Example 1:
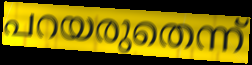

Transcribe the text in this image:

പറയരുതെന്ന്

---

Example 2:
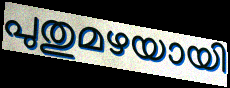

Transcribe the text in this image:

പുതുമഴയായി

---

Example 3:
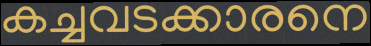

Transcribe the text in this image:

കച്ചവടക്കാരനെ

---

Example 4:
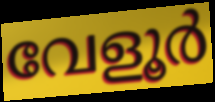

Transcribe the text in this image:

വേളൂർ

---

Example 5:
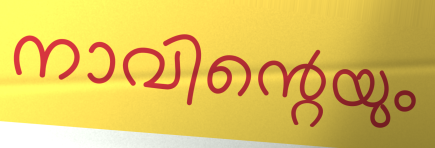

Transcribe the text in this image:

നാവിന്റെയും